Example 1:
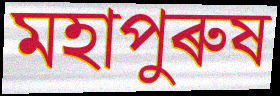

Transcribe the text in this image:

মহাপুৰুষ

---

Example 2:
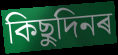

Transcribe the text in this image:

কিছুদিনৰ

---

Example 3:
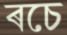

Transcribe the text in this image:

ৰচে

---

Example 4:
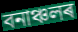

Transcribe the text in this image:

বনাঞ্চলৰ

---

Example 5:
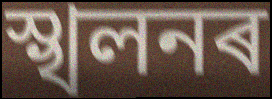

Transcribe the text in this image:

স্খলনৰ